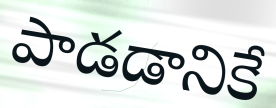
పాడడానికే